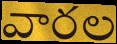
వారల